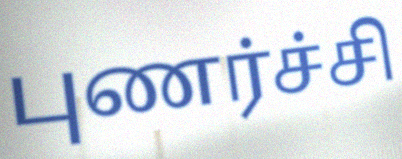
புணர்ச்சி